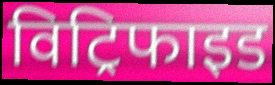
विट्रिफाइड